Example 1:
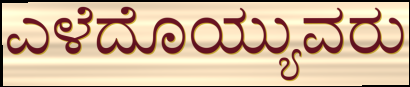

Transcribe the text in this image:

ಎಳೆದೊಯ್ಯುವರು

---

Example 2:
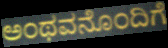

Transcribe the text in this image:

ಅಂಥವನೊಂದಿಗೆ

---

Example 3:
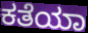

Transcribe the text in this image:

ಕತೆಯಾ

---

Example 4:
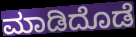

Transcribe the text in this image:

ಮಾಡಿದೊಡೆ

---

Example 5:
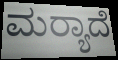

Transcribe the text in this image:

ಮರ‍್ಯಾದೆ